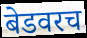
बेडवरच